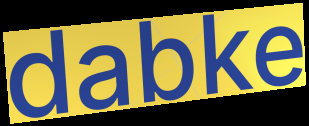
dabke